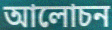
আলোচন